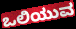
ಒಲಿಯುವ